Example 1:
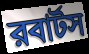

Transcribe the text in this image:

রবার্টস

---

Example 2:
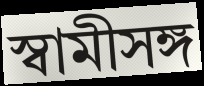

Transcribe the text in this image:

স্বামীসঙ্গ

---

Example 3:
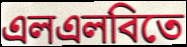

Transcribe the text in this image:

এলএলবিতে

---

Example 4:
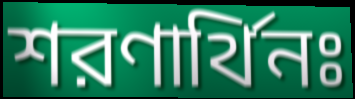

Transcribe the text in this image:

শরণার্থিনঃ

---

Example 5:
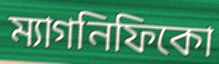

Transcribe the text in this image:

ম্যাগনিফিকো